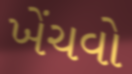
ખેંચવો